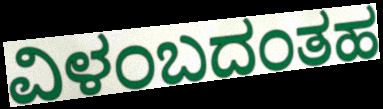
ವಿಳಂಬದಂತಹ